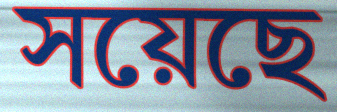
সয়েছে